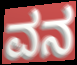
ವನ